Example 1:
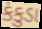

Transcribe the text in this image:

કંકુડા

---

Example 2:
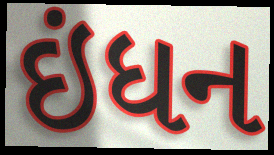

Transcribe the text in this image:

ઇંધન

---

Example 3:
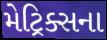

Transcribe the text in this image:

મેટ્રિક્સના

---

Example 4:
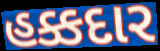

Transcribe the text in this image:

હક્કદાર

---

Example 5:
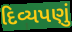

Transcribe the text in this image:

દિવ્યપણું